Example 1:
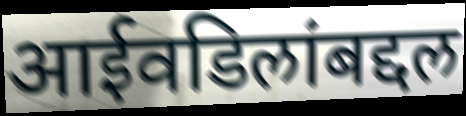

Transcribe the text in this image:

आईवडिलांबद्दल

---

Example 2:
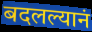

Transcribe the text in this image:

बदलल्यानं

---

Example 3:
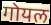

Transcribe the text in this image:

गोयल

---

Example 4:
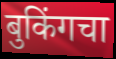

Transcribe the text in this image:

बुकिंगचा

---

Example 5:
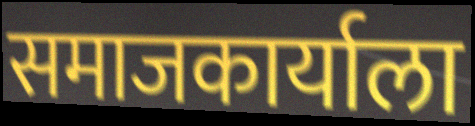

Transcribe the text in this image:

समाजकार्याला